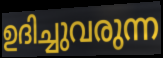
ഉദിച്ചുവരുന്ന